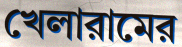
খেলারামের